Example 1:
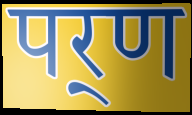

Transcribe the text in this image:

पर्ण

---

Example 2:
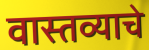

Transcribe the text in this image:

वास्तव्याचे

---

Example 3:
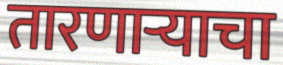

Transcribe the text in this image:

तारणाऱ्याचा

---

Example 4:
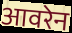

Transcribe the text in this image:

आवरेन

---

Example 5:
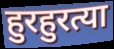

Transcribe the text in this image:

हुरहुरत्या